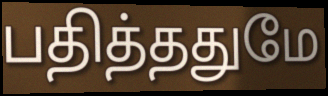
பதித்ததுமே